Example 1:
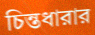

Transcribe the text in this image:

চিন্তধারার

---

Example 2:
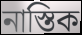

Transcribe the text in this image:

নাস্তিক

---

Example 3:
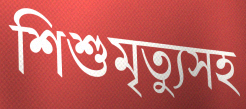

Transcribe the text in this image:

শিশুমৃত্যুসহ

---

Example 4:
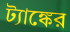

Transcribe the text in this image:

ট্যাঙ্কের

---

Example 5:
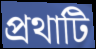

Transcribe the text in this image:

প্রথাটি